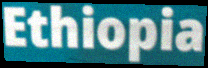
Ethiopia